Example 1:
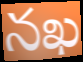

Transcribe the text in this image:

నఖ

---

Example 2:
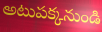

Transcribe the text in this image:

అటుపక్కనుండి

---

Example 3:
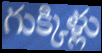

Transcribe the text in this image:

గుక్కిళ్లు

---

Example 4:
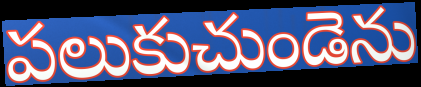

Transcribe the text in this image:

పలుకుచుండెను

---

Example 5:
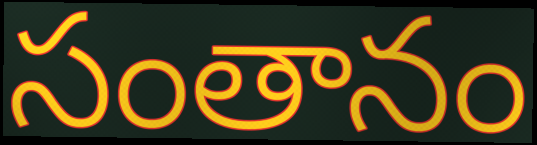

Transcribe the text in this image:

సంతానం